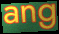
ang